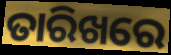
ତାରିଖରେ